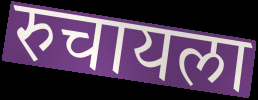
रुचायला